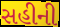
સહીની